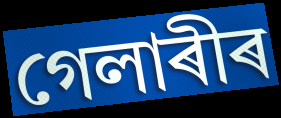
গেলাৰীৰ